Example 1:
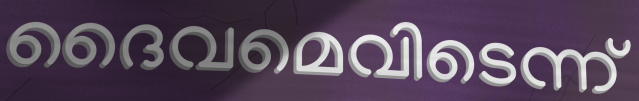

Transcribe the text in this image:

ദൈവമെവിടെന്ന്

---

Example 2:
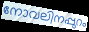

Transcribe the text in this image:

നോവലിനപ്പുറം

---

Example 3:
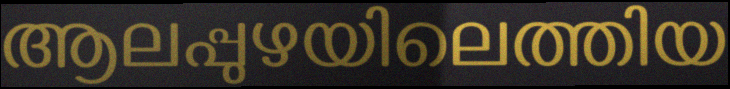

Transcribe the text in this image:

ആലപ്പുഴയിലെത്തിയ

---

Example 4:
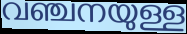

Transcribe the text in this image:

വഞ്ചനയുള്ള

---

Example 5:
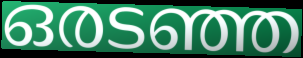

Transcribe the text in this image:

ഒരടഞ്ഞ